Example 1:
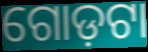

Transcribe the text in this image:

ଗୋଡ଼ଟା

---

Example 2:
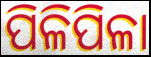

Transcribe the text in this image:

ପିଳିପିଳା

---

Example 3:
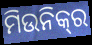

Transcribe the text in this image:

ମିଉନିକ୍‌ର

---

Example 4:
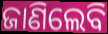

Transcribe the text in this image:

ଜାଣିଲେବି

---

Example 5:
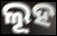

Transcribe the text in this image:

ଲୂହ